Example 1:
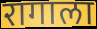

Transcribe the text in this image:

रागाला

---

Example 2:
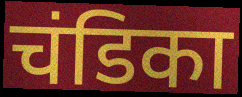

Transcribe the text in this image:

चंडिका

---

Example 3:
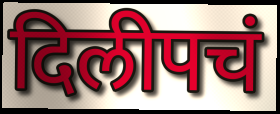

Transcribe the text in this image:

दिलीपचं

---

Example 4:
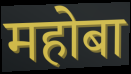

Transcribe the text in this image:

महोबा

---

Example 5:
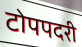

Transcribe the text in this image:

टोपपदरी